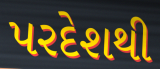
પરદેશથી